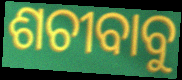
ଶଚୀବାବୁ